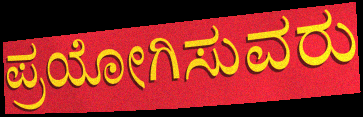
ಪ್ರಯೋಗಿಸುವರು